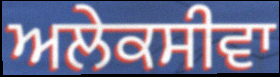
ਅਲੇਕਸੀਵਾ